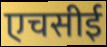
एचसीई